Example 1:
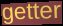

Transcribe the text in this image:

getter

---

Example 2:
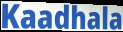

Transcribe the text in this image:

Kaadhala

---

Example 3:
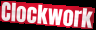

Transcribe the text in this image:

Clockwork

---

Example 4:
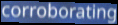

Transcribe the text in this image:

corroborating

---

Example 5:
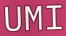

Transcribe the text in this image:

UMI